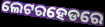
ଲେଟରହେଡରେ